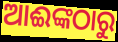
ଆଈଙ୍କଠାରୁ